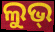
ଲୁଭ୍